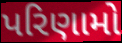
પરિણામો